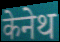
केनेथ